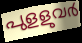
പുളളുവർ